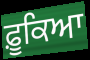
ਫ਼ੂਕਿਆ